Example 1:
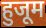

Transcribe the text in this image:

हुजूम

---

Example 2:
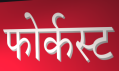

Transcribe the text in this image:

फोर्कस्ट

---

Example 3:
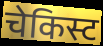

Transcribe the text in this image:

चेकिस्ट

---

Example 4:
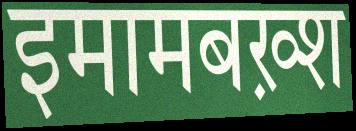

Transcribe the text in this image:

इमामबख़्श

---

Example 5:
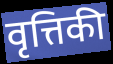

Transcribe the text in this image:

वृत्तिकी